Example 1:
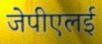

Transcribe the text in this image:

जेपीएलई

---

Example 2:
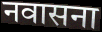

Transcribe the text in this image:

नवासना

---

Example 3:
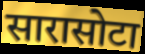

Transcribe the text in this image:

सारासोटा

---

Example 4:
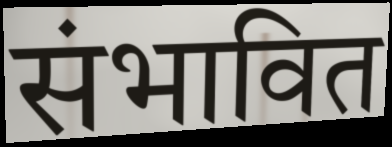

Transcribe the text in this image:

संभावित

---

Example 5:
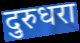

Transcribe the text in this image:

दुरुधरा